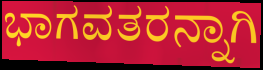
ಭಾಗವತರನ್ನಾಗಿ